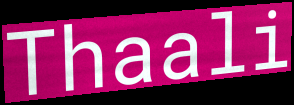
Thaali